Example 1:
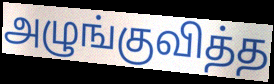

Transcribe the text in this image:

அழுங்குவித்த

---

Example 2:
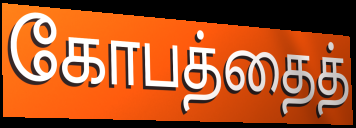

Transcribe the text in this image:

கோபத்தைத்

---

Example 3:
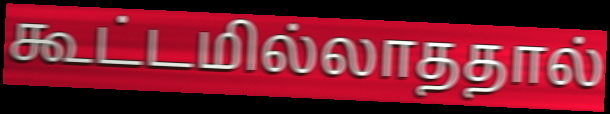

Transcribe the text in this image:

கூட்டமில்லாததால்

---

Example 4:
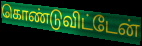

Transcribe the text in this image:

கொண்டுவிட்டேன்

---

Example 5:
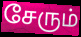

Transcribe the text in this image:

சேரும்